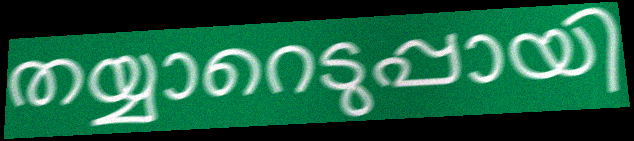
തയ്യാറെടുപ്പായി